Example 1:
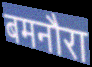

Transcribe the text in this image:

बमनौरा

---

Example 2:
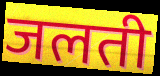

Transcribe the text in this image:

जलती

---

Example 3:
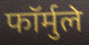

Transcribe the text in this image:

फॉर्मुले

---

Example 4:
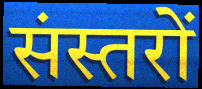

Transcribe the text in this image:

संस्तरों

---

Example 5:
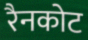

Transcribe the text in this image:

रैनकोट